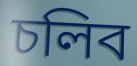
চলিব